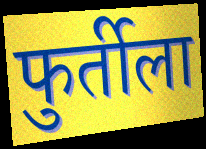
फुर्तीला